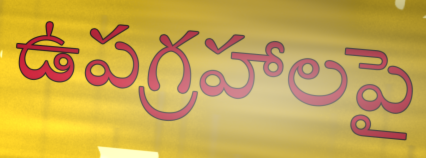
ఉపగ్రహాలపై